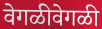
वेगळीवेगळी